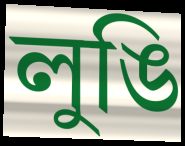
লুঙি